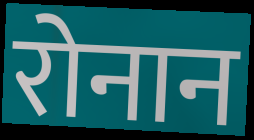
रोनान